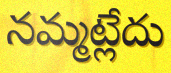
నమ్మట్లేదు